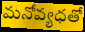
మనోవ్యధతో